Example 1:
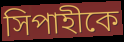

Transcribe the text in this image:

সিপাহীকে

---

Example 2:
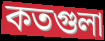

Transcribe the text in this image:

কতগুলা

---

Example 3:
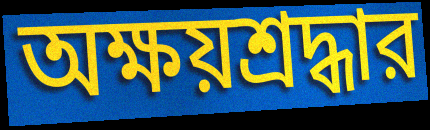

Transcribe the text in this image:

অক্ষয়শ্রদ্ধার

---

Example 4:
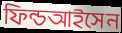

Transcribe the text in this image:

ফিন্ডআইসেন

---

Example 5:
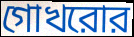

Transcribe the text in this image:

গোখরোর